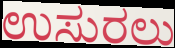
ಉಸುರಲು